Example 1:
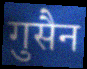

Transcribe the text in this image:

गुसैन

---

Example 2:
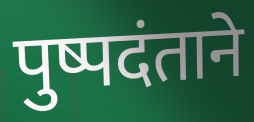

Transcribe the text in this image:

पुष्पदंताने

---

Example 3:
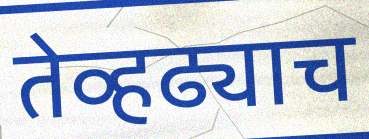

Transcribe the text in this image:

तेव्हढ्याच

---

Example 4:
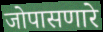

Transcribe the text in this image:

जोपासणारे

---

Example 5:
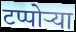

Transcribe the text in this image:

टप्पोऱ्या